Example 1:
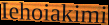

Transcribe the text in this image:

Iehoiakimi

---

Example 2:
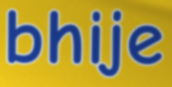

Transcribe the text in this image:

bhije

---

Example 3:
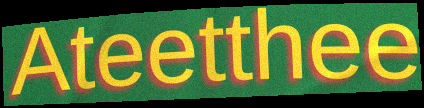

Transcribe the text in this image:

Ateetthee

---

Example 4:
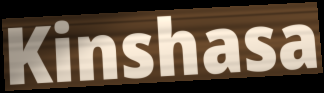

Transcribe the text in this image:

Kinshasa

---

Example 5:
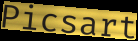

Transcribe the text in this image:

Picsart